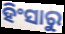
ହିଂସାରୁ